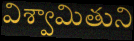
విశ్వామితుని